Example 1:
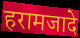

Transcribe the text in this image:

हरामजादे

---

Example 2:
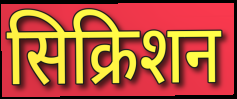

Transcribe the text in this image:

सिक्रिशन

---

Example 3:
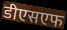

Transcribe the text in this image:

डीएसएफ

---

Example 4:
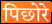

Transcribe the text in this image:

पिछोरे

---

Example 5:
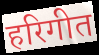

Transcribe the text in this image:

हरिगीत